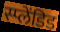
स्प्लेंडिड